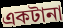
একটানা